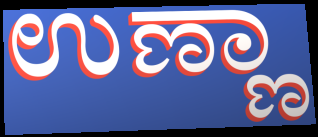
ಉಣ್ಣಾ